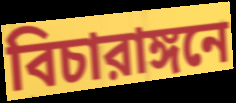
বিচারাঙ্গনে